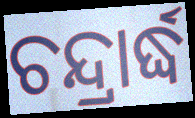
ଚନ୍ଦ୍ରାର୍ଦ୍ଧ